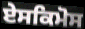
ਏਸਕਿਮੋਸ